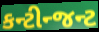
કન્ટીન્જન્ટ